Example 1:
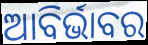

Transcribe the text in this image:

ଆବିର୍ଭାବର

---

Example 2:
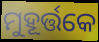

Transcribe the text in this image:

ମୁହୂର୍ତ୍ତକେ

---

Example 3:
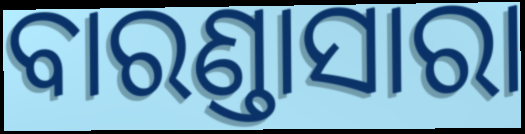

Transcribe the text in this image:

ବାରଣ୍ଡାସାରା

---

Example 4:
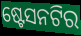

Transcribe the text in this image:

ଷ୍ଟେସନଟିର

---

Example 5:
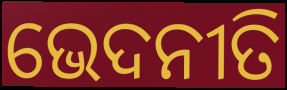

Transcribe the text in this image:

ଭେଦନୀତି